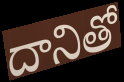
దానితో